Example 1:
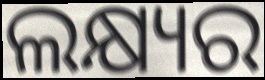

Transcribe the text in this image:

ଲକ୍ଷ୍ୟର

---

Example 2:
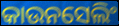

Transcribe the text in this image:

କାଉନସେଲିଂ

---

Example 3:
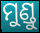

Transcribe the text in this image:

ମୁଣ୍ଡୁ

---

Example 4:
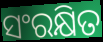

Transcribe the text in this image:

ସଂରକ୍ଷିତ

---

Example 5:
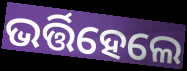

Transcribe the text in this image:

ଭର୍ତ୍ତିହେଲେ